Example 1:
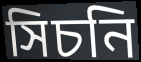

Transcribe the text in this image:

সিচনি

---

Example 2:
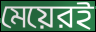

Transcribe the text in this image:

মেয়েরই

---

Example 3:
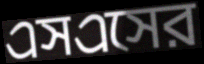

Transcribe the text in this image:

এসএসের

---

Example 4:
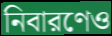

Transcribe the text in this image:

নিবারণেও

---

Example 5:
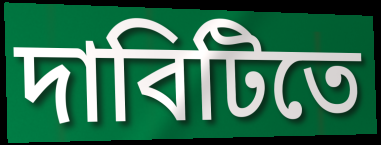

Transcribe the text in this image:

দাবিটিতে